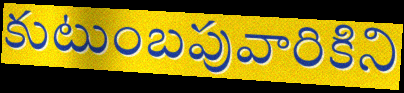
కుటుంబపువారికిని